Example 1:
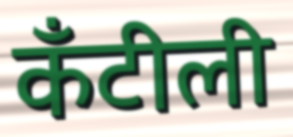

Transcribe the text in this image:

कँटीली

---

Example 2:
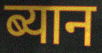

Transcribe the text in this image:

ब्यान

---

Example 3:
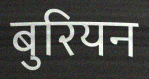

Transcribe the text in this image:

बुरियन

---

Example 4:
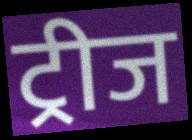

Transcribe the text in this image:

ट्रीज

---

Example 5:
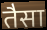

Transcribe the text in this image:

तैसा